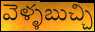
వెళ్ళబుచ్చి